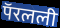
पॅरलली